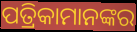
ପତ୍ରିକାମାନଙ୍କର